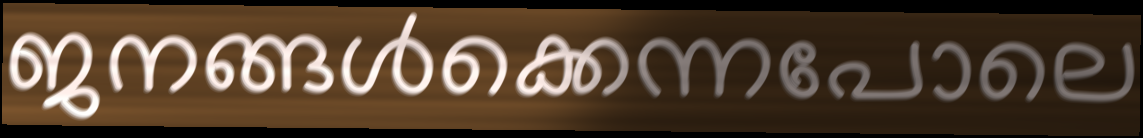
ജനങ്ങൾക്കെന്നപോലെ